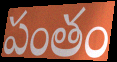
పంతం